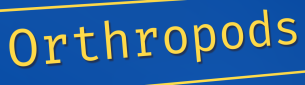
Orthropods